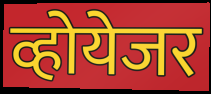
व्होयेजर